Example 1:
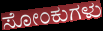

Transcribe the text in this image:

ಸೋಂಕುಗಳು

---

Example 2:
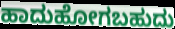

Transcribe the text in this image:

ಹಾದುಹೋಗಬಹುದು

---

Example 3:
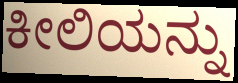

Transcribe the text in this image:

ಕೀಲಿಯನ್ನು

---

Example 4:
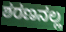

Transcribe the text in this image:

ಶರಣನಲ್ಲ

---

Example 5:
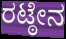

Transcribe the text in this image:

ರಟ್ಠೇನ